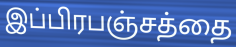
இப்பிரபஞ்சத்தை